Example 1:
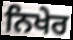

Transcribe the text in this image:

ਨਿਖੇਰ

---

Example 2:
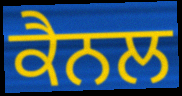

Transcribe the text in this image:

ਕੈਨਲ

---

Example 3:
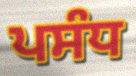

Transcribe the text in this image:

ਪਸੰਧ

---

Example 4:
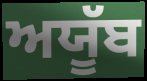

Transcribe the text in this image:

ਅਯੂੱਬ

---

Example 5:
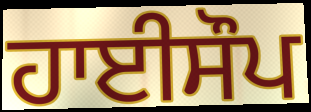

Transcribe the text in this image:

ਹਾਈਸੌਪ